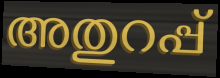
അതുറപ്പ്